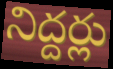
నిద్దర్లు